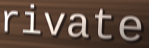
rivate